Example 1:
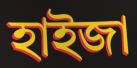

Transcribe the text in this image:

হাইজা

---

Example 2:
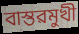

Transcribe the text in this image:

বাস্তৱমুখী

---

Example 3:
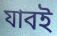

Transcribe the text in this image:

যাবই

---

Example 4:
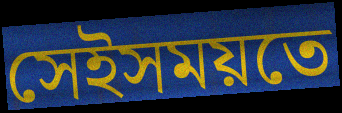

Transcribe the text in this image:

সেইসময়তে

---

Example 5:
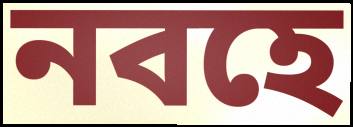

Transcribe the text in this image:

নবহে